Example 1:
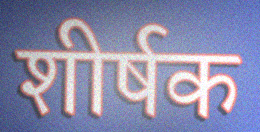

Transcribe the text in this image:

शीर्षक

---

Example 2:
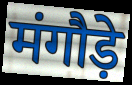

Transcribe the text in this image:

मंगौड़े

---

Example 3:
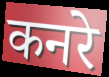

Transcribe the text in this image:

कनरे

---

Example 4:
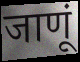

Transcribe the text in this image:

जाणूं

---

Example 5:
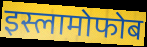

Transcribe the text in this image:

इस्लामोफोब